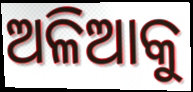
ଅଳିଆକୁ